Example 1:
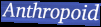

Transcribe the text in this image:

Anthropoid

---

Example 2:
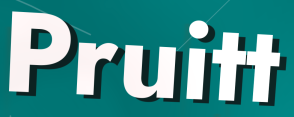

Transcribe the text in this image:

Pruitt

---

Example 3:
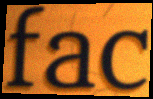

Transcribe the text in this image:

fac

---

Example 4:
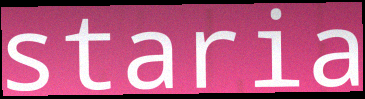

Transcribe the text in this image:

staria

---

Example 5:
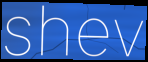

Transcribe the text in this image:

shev